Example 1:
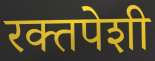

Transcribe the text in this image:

रक्तपेशी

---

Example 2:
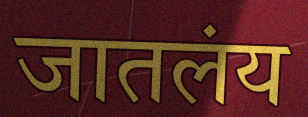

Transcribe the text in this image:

जातलंय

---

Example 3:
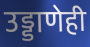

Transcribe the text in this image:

उड्डाणेही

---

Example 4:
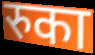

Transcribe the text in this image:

रुका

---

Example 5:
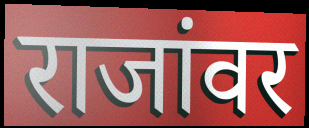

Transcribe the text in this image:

राजांवर